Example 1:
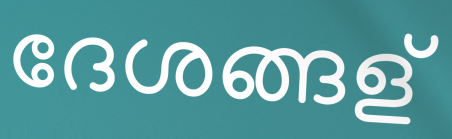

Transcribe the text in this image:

ദേശങ്ങള്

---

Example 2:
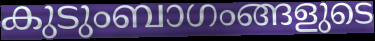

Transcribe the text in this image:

കുടുംബാഗംങ്ങളുടെ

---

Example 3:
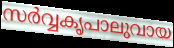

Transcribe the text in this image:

സർവ്വകൃപാലുവായ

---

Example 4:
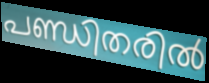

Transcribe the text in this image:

പണ്ഡിതരിൽ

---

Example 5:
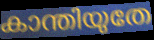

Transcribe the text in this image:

കാന്തിയുതേ